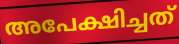
അപേക്ഷിച്ചത്